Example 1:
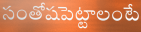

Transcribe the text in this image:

సంతోషపెట్టాలంటే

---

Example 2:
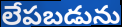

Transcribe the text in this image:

లేపబడును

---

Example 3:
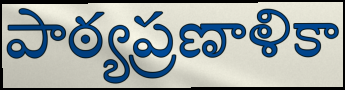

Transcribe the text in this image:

పాఠ్యప్రణాళికా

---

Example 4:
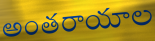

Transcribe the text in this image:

అంతరాయాల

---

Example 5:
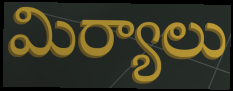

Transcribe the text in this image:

మిర్యాలు